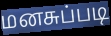
மனசுப்படி